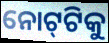
ନୋଟ୍‌ଟିକୁ